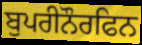
ਬੁਪਰੀਨੌਰਫਿਨ